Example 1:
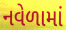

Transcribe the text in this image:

નવેળામાં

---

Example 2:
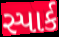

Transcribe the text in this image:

સ્પાર્ક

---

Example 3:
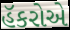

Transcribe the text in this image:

હૅકરોએ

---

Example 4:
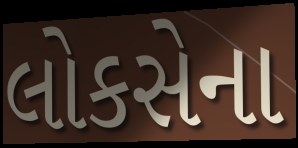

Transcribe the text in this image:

લોકસેના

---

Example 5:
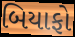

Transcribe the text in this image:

બિયાફો